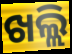
ଖଲ୍ଲି